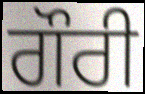
ਗੌਰੀ